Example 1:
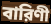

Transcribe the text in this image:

বারিণী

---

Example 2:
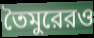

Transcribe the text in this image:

তৈমুরেরও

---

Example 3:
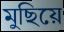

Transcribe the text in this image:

মুছিয়ে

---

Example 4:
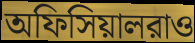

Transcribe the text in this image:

অফিসিয়ালরাও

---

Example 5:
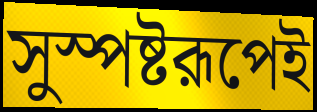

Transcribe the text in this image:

সুস্পষ্টরূপেই